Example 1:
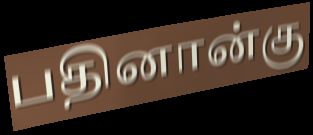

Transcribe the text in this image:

பதினான்கு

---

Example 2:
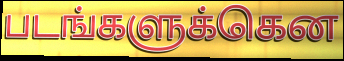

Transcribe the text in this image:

படங்களுக்கென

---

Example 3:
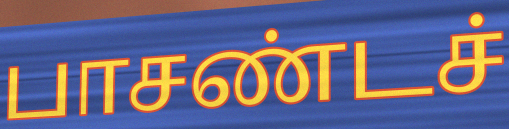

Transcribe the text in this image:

பாசண்டச்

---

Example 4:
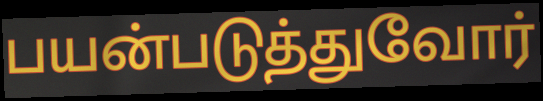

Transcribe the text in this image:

பயன்படுத்துவோர்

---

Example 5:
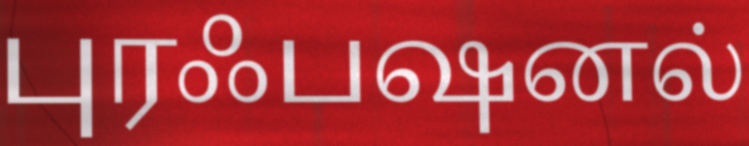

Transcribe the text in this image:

புரஃபஷனல்